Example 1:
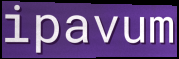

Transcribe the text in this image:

ipavum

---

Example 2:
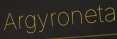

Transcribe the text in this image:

Argyroneta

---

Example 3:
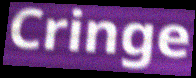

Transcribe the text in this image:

Cringe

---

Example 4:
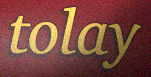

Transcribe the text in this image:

tolay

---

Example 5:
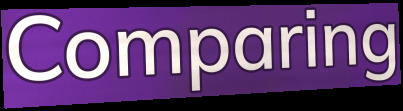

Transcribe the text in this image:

Comparing